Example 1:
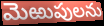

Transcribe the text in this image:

మెఱుపులను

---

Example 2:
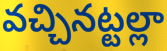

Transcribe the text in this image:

వచ్చినట్టల్లా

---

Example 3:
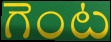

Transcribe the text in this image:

గెంట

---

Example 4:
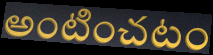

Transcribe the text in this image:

అంటించటం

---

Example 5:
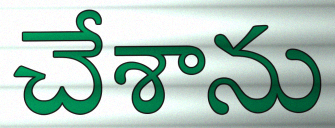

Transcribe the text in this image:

చేశాను